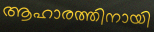
ആഹാരത്തിനായി